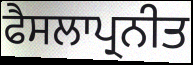
ਫੈਸਲਾਪ੍ਰਨੀਤ